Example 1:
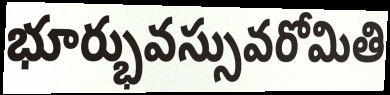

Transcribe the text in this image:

భూర్భువస్సువరోమితి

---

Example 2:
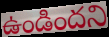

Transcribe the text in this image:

ఉండిందని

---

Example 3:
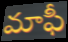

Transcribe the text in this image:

మాఫీ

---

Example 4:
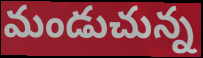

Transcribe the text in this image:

మండుచున్న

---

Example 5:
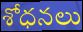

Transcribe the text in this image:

శోధనలు